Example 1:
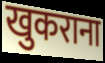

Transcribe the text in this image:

खुकराना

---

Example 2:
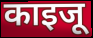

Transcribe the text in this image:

काइजू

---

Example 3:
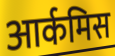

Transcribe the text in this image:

आर्कमिस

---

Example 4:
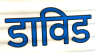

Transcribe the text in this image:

डाविड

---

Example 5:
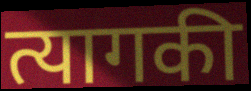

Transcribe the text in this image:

त्यागकी